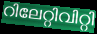
റിലേറ്റിവിറ്റി